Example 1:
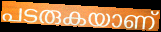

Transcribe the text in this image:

പടരുകയാണ്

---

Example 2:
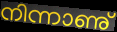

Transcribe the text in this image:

നിന്നാണു്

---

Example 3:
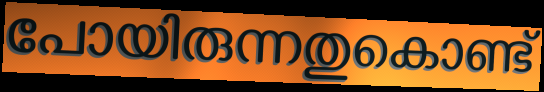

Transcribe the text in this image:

പോയിരുന്നതുകൊണ്ട്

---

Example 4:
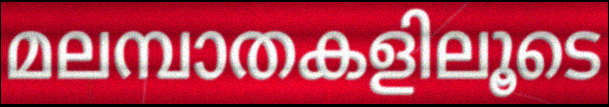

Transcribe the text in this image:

മലമ്പാതകളിലൂടെ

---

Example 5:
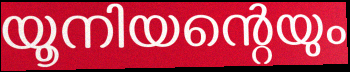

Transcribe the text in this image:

യൂനിയന്റെയും